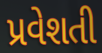
પ્રવેશતી